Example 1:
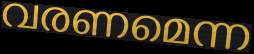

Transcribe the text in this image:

വരണമെന്ന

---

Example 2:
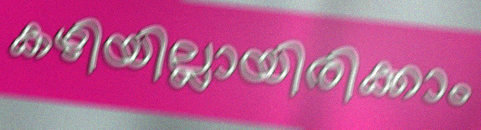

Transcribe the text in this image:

കഴിയില്ലായിരിക്കാം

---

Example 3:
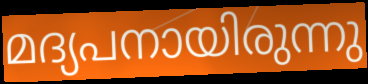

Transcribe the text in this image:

മദ്യപനായിരുന്നു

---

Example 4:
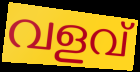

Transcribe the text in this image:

വളവ്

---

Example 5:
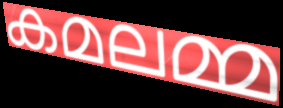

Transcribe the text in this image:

കമലമ്മ